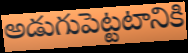
అడుగుపెట్టటానికి